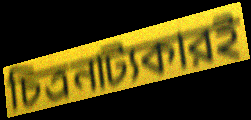
চিত্রনাট্যকারই